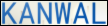
KANWAL